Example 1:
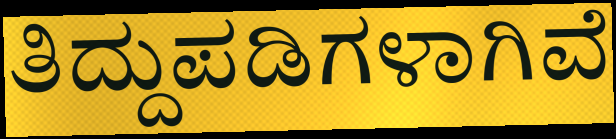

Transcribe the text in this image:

ತಿದ್ದುಪಡಿಗಳಾಗಿವೆ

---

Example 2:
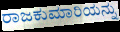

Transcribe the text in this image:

ರಾಜಕುಮಾರಿಯನ್ನು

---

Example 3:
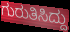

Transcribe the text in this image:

ಗುರುತಿಸಿದ್ದು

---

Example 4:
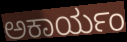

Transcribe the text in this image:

ಅಕಾರ್ಯಂ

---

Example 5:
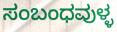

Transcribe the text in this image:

ಸಂಬಂಧವುಳ್ಳ